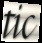
tic